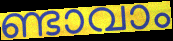
ണ്ടാവാം